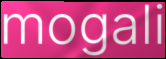
mogali